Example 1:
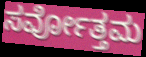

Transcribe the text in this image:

ಸರ್ವೋತ್ತಮ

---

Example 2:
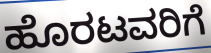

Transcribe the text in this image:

ಹೊರಟವರಿಗೆ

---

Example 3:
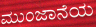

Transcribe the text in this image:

ಮುಂಜಾನೆಯ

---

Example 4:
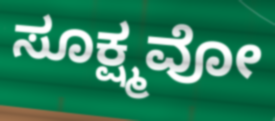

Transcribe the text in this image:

ಸೂಕ್ಷ್ಮವೋ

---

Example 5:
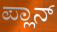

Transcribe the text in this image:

ಪ್ಲಾನ್